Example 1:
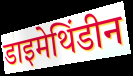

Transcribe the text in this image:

डाइमेथिंडीन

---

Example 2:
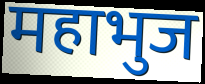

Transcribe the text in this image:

महाभुज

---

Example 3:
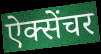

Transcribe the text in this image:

ऐक्सेंचर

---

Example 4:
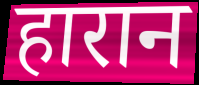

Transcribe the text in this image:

हारान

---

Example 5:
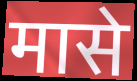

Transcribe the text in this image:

मासे